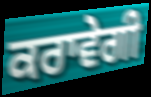
ਕਰਾਵੇਗੀ